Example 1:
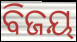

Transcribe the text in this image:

ବିଜୟ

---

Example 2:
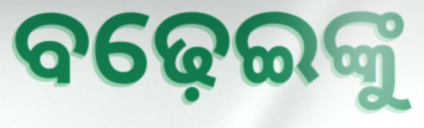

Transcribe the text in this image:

ବଢ଼େଇଙ୍କୁ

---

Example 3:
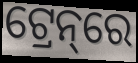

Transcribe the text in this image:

ଟ୍ରେନ୍‌ରେ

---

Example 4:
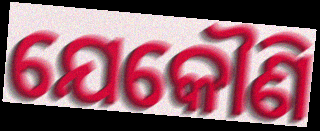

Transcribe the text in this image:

ଯେକୌଣି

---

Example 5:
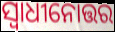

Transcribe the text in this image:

ସ୍ୱାଧୀନୋତ୍ତର